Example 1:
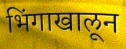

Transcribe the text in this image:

भिंगाखालून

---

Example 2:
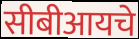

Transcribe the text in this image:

सीबीआयचे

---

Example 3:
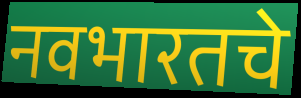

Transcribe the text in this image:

नवभारतचे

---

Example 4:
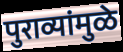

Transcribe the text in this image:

पुराव्यांमुळे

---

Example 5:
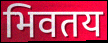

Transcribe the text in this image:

भिवतय